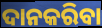
ଦାନକରିବା